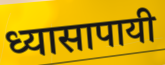
ध्यासापायी